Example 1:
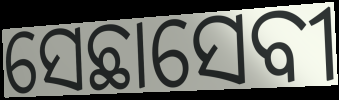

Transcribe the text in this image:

ସେଛାସେବୀ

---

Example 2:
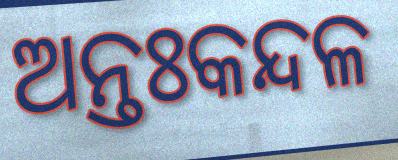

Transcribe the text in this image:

ଅନ୍ତଃକନ୍ଦଳ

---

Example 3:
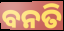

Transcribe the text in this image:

ବନତି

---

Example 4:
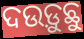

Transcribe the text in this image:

ଦଉଡ଼ୁଛୁ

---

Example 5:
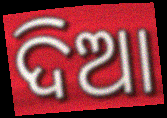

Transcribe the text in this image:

ଦିଆ